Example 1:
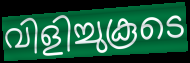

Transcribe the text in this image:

വിളിച്ചുകൂടെ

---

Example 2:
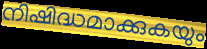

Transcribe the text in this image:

നിഷിദ്ധമാക്കുകയും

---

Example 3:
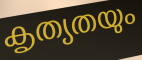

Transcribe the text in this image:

കൃത്യതയും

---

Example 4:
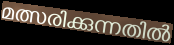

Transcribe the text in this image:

മത്സരിക്കുന്നതിൽ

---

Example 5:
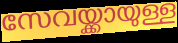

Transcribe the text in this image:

സേവയ്ക്കായുള്ള